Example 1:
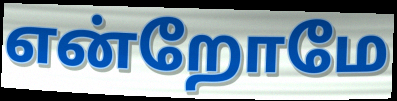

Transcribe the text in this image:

என்றோமே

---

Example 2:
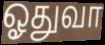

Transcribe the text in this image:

ஓதுவா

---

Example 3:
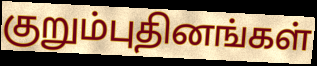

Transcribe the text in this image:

குறும்புதினங்கள்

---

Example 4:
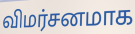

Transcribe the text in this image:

விமர்சனமாக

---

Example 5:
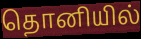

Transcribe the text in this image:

தொனியில்